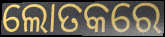
ଲୋତକରେ